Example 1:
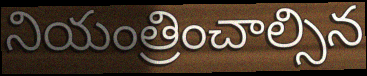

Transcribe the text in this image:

నియంత్రించాల్సిన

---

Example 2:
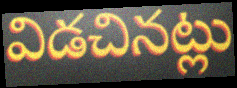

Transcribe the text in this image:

విడచినట్లు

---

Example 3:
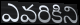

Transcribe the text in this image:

ఎవరికిని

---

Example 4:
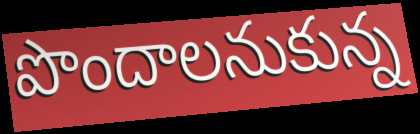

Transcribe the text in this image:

పొందాలనుకున్న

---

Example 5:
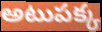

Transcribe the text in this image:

అటుపక్క